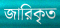
জারিকৃত